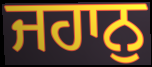
ਜਹਾਨੁ